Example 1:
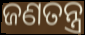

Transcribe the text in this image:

ଜଣତନ୍ତ୍ର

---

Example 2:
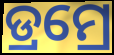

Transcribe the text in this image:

ଡ୍ରମ୍ରେ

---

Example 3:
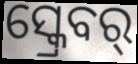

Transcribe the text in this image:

ସ୍କ୍ରେବର୍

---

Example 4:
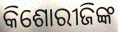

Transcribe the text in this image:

କିଶୋରୀଜିଙ୍କ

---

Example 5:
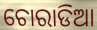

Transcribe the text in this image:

ଚୋରାଡିଆ